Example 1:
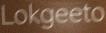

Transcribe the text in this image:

Lokgeeto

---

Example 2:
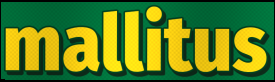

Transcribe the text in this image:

mallitus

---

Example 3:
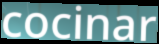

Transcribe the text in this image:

cocinar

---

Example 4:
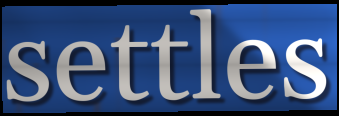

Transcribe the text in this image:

settles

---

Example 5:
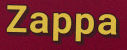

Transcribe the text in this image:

Zappa